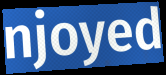
njoyed